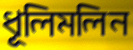
ধূলিমলিন